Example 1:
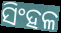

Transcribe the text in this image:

ସିଂହଳ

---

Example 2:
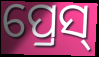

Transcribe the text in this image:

ପ୍ରେସ୍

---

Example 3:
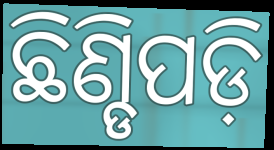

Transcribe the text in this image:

ଛିଣ୍ଡିପଡ଼ି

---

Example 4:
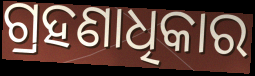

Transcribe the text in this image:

ଗ୍ରହଣାଧିକାର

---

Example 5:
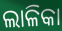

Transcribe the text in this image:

ଲାଳିକା